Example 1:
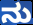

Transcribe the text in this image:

ನು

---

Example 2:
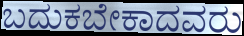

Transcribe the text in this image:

ಬದುಕಬೇಕಾದವರು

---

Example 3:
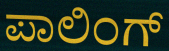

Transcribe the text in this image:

ಪಾಲಿಂಗ್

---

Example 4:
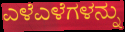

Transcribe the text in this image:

ಎಳೆಎಳೆಗಳನ್ನು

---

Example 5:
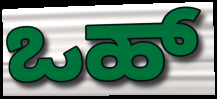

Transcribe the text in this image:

ಒಹ್